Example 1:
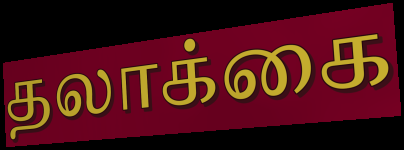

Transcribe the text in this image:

தலாக்கை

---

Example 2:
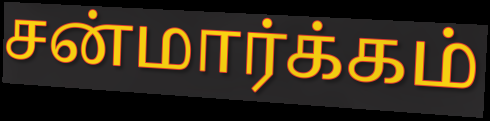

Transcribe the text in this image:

சன்மார்க்கம்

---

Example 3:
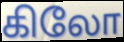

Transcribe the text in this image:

கிலோ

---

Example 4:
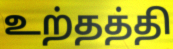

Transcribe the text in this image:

உற்தத்தி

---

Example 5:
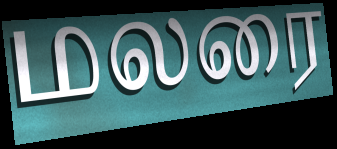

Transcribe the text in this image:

மலரை